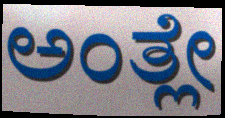
ಅಂತ್ಲೇ